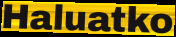
Haluatko